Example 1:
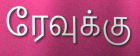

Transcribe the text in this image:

ரேவுக்கு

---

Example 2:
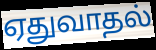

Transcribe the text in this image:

ஏதுவாதல்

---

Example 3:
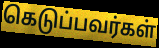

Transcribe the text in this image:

கெடுப்பவர்கள்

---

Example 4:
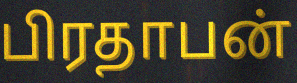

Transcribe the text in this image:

பிரதாபன்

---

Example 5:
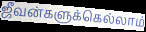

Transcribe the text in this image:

ஜீவன்களுக்கெல்லாம்